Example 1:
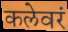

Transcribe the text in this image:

कलेवरं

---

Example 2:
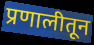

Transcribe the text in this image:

प्रणालीतून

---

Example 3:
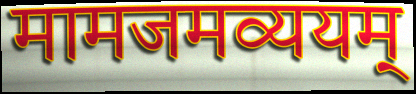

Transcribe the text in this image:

मामजमव्ययम्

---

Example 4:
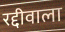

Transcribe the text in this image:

रद्दीवाला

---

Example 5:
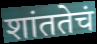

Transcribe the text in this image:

शांततेचं